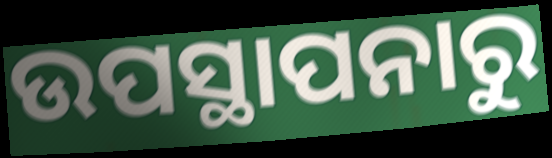
ଉପସ୍ଥାପନାରୁ